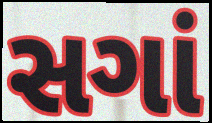
સગાં